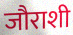
जौराशी